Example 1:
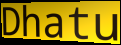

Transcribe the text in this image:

Dhatu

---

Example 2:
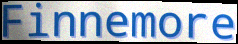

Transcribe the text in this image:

Finnemore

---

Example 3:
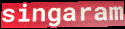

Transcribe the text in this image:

singaram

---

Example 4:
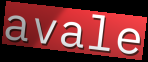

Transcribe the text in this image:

avale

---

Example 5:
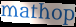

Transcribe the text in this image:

mathop